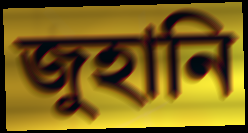
জুহানি